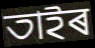
তাইৰ